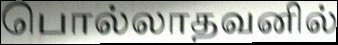
பொல்லாதவனில்